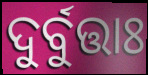
ଦୁର୍ବୁତ୍ତାଃ